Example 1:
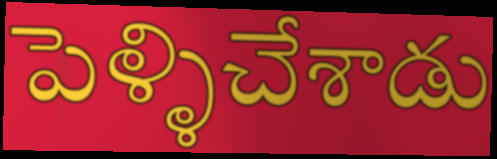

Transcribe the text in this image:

పెళ్ళిచేశాడు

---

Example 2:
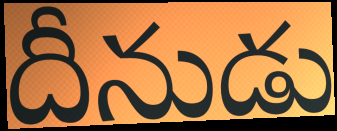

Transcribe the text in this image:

దీనుడు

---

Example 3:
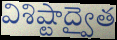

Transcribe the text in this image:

విశిష్టాద్వైత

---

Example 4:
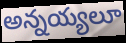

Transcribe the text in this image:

అన్నయ్యలూ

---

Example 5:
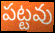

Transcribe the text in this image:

పట్టవు